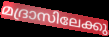
മദ്രാസിലേക്കു